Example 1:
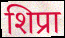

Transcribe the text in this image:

शिप्रा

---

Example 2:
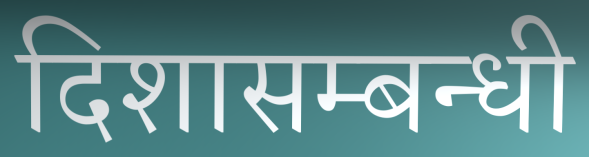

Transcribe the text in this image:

दिशासम्बन्धी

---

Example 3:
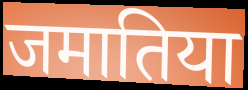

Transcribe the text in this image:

जमातिया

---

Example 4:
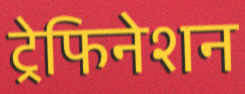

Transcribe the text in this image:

ट्रेफिनेशन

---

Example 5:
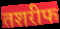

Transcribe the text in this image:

तशरीफ